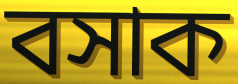
বসাক